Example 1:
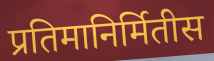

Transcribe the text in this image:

प्रतिमानिर्मितीस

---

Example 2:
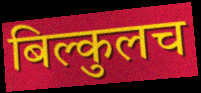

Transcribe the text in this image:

बिल्कुलच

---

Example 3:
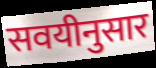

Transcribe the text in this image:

सवयीनुसार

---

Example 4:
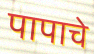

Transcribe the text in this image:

पापाचे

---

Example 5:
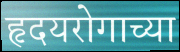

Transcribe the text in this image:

हृदयरोगाच्या